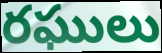
రఘులు